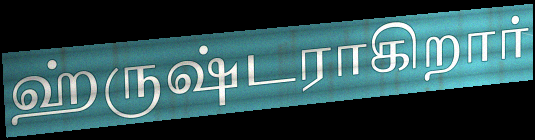
ஹ்ருஷ்டராகிறார்